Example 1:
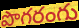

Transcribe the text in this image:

పొగరంగు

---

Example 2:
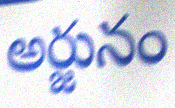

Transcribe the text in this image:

అర్జునం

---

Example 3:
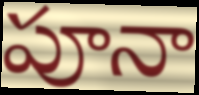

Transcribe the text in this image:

పూనా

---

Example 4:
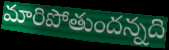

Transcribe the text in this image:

మారిపోతుందన్నది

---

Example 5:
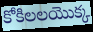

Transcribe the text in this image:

కోకిలలయొక్క